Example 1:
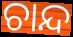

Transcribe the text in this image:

ଚାନ୍ଦ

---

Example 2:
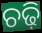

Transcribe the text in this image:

ଚଢ଼ି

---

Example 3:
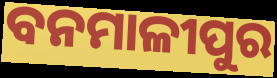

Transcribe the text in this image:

ବନମାଳୀପୁର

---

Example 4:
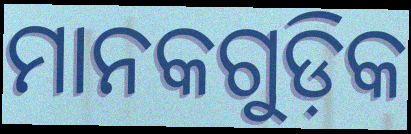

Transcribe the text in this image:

ମାନକଗୁଡ଼ିକ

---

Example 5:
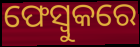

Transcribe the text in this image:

ଫେସ୍ବୁକରେ